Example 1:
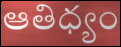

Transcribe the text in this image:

ఆతిధ్యం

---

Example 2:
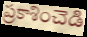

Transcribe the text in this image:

ప్రకాశించెడి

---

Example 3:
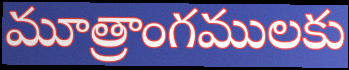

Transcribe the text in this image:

మూత్రాంగములకు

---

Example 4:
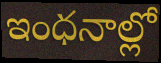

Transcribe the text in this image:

ఇంధనాల్లో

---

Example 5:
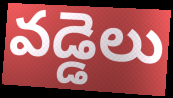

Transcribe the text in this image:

వడ్డెలు